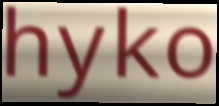
hyko